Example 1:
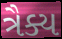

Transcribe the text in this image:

ત્રૈક્ય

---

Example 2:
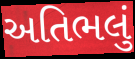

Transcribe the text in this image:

અતિભલું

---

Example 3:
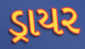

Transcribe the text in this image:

ડ્રાયર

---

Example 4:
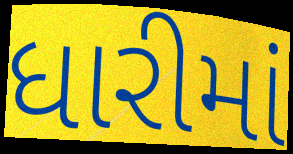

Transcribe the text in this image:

ધારીમાં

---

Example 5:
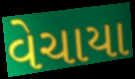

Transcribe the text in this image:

વેચાયા